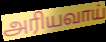
அரியவாய்